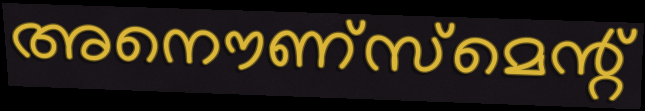
അനൌണ്സ്മെന്റ്